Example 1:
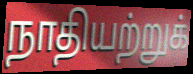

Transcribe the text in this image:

நாதியற்றுக்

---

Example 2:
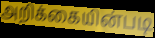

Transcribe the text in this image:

அறிக்கையின்படி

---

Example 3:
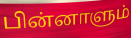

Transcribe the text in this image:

பின்னாளும்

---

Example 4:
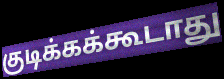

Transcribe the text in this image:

குடிக்கக்கூடாது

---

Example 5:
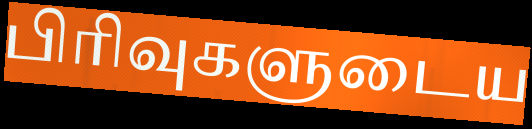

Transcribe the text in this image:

பிரிவுகளுடைய